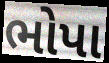
ભોપા